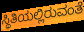
ಸ್ಥಿತಿಯಲ್ಲಿರುವಂತೆ